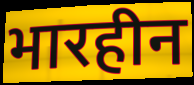
भारहीन